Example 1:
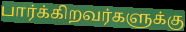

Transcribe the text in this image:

பார்க்கிறவர்களுக்கு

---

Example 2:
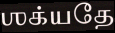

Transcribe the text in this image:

ஶக்யதே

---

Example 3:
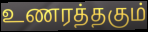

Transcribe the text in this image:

உணரத்தகும்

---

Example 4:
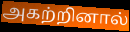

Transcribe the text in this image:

அகற்றினால்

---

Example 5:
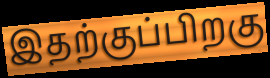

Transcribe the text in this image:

இதற்குப்பிறகு